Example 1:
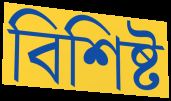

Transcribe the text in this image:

বিশিষ্ট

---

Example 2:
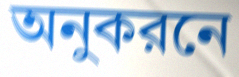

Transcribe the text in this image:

অনুকরনে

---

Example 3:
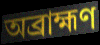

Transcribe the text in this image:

অব্রাহ্মণ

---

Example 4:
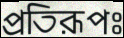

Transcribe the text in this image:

প্রতিরূপঃ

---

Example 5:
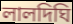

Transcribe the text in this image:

লালদিঘি